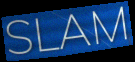
SLAM